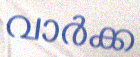
വാർക്ക